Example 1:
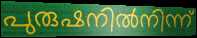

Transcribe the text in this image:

പുരുഷനിൽനിന്ന്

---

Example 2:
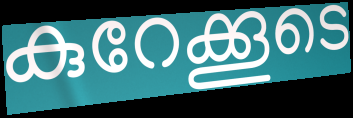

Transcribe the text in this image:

കുറേക്കൂടെ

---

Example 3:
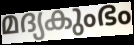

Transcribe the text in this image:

മദ്യകുംഭം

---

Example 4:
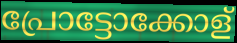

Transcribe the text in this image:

പ്രോട്ടോക്കോള്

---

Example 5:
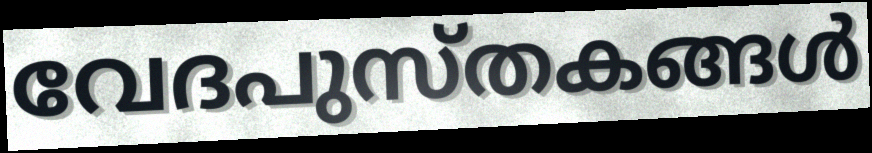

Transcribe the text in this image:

വേദപുസ്തകങ്ങൾ